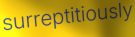
surreptitiously